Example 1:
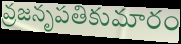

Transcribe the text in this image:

వ్రజనృపతికుమారం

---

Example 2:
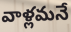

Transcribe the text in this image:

వాళ్లమనే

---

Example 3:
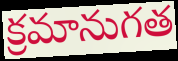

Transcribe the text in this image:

క్రమానుగత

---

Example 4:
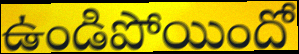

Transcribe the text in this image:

ఉండిపోయిందో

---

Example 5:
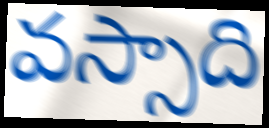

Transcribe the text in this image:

వస్సాది